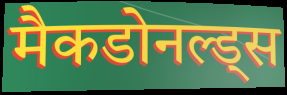
मैकडोनल्ड्स